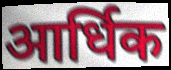
आर्धिक